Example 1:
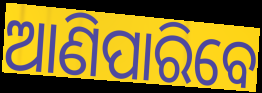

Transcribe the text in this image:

ଆଣିପାରିବେ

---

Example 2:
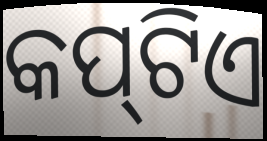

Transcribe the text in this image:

କପ୍‌ଟିଏ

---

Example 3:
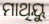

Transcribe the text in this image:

ମାଥିୟୁ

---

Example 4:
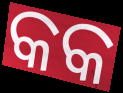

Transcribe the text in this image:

କକ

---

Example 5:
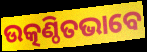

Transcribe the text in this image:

ଉତ୍କଣ୍ଠିତଭାବେ